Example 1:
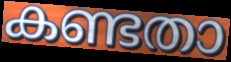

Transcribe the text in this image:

കണ്ടതാ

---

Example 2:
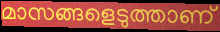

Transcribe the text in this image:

മാസങ്ങളെടുത്താണ്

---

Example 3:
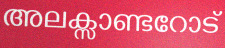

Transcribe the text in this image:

അലക്സാണ്ടറോട്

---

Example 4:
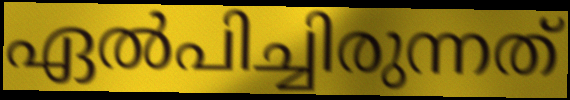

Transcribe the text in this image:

ഏൽപിച്ചിരുന്നത്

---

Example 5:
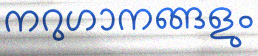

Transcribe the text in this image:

നറുഗാനങ്ങളും